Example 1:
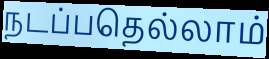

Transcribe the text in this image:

நடப்பதெல்லாம்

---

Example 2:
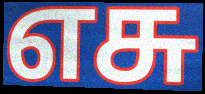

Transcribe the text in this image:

எசு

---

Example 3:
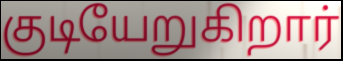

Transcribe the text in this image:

குடியேறுகிறார்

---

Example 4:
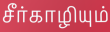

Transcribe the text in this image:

சீர்காழியும்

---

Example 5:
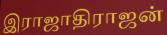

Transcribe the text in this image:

இராஜாதிராஜன்